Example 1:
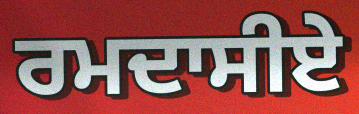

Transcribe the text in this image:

ਰਮਦਾਸੀਏ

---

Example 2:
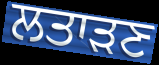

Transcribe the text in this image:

ਲਤਾੜਣ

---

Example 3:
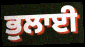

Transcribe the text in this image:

ਭੁਲਾਈ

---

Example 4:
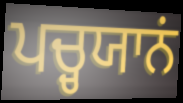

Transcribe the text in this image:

ਪਚ੍ਚਯਾਨਂ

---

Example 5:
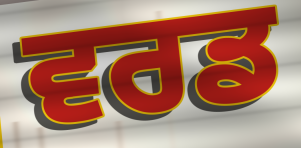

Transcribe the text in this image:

ਵਰਡ